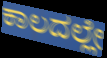
ಕಾಲದಲ್ಲೇ